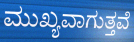
ಮುಖ್ಯವಾಗುತ್ತವೆ